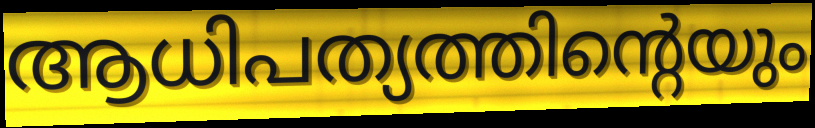
ആധിപത്യത്തിന്റെയും